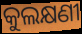
କୁଲକ୍ଷଣୀ